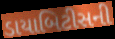
ડાયાબિટીસની